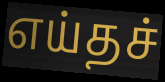
எய்தச்